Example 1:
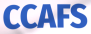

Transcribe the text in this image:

CCAFS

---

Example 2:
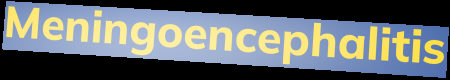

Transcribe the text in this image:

Meningoencephalitis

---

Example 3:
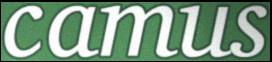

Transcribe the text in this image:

camus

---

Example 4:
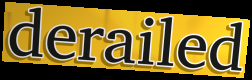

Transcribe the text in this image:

derailed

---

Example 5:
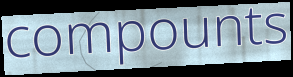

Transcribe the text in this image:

compounts